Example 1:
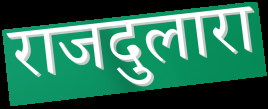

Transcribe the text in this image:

राजदुलारा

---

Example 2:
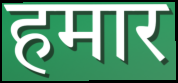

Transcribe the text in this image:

हमार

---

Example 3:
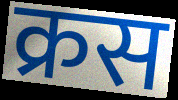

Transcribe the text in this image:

क्रस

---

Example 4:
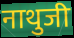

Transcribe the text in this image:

नाथुजी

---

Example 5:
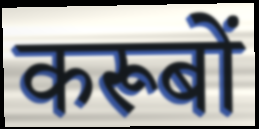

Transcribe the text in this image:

करूबों